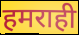
हमराही